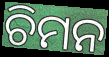
ଚିମନ